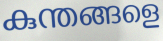
കുന്തങ്ങളെ